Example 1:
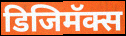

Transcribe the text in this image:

डिजिमॅक्स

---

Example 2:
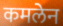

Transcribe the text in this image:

कमलेन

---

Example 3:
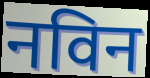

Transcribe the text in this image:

नविन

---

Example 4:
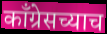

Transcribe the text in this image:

काँग्रेसच्याच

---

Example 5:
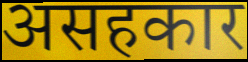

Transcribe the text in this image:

असहकार